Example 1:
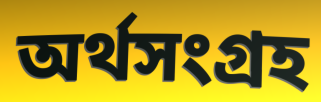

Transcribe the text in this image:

অর্থসংগ্রহ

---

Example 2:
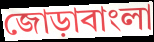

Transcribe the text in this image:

জোড়াবাংলা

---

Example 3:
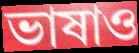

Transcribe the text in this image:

ভাষাও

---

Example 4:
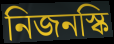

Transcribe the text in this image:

নিজনস্কি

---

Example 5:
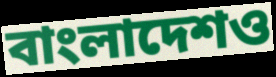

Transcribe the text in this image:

বাংলাদেশও